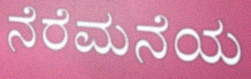
ನೆರೆಮನೆಯ